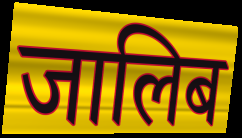
जालिब